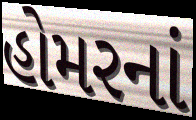
હોમરનાં